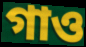
গাও